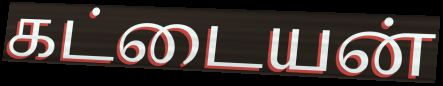
கட்டையன்